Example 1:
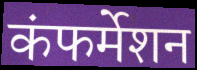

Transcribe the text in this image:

कंफर्मेशन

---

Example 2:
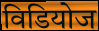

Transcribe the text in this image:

विडियोज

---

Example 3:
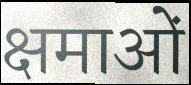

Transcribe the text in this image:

क्षमाओं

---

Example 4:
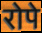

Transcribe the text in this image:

रोपे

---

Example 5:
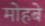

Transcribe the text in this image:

मोहबे